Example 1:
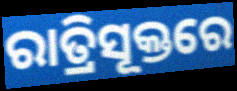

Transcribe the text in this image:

ରାତ୍ରିସୂକ୍ତରେ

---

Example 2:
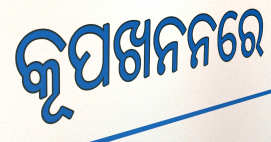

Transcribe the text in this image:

କୂପଖନନରେ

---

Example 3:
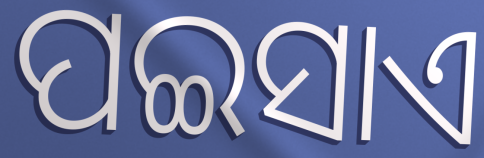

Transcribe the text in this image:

ପଇସାଏ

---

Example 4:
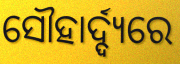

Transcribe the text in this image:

ସୌହାର୍ଦ୍ଦ୍ୟରେ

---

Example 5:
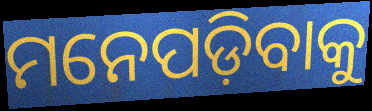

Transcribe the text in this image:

ମନେପଡ଼ିବାକୁ